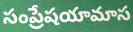
సంప్రేషయామాస